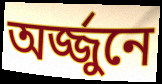
অর্জ্জুনে